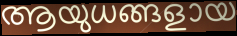
ആയുധങ്ങളായ